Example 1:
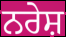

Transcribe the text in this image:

ਨਰੇਸ਼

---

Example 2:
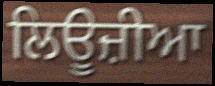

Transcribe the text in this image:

ਲਿਊਜ਼ੀਆ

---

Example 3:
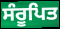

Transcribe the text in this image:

ਸੰਰੂਪਿਤ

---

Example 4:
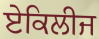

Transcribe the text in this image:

ਏਕਿਲੀਜ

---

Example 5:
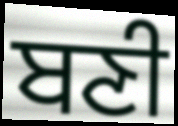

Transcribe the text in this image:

ਬਣੀ